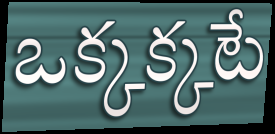
ఒక్కక్కటే